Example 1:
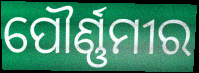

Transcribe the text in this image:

ପୌର୍ଣ୍ଣମୀର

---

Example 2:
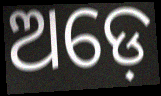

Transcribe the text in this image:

ଅଡ଼େ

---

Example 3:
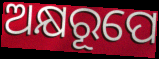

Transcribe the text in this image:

ଅକ୍ଷରୂପେ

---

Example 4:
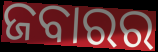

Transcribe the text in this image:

ଜବାରର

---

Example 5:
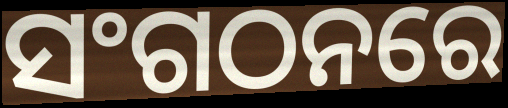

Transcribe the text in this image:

ସଂଗଠନରେ